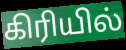
கிரியில்